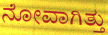
ನೋವಾಗಿತ್ತು